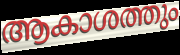
ആകാശത്തും